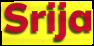
Srija